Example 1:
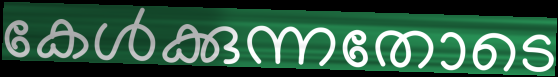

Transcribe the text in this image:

കേൾക്കുന്നതോടെ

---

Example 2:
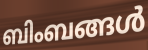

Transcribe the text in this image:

ബിംബങ്ങൾ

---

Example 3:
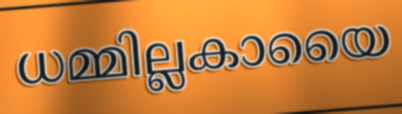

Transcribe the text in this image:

ധമ്മില്ലകായൈ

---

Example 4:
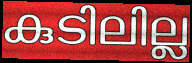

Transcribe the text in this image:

കുടിലില്ല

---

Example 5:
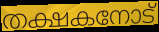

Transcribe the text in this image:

തക്ഷകനോട്